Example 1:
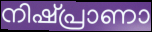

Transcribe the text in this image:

നിഷ്പ്രാണാ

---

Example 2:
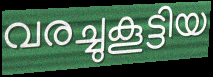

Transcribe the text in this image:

വരച്ചുകൂട്ടിയ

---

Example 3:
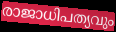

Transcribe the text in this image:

രാജാധിപത്യവും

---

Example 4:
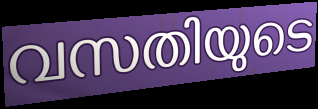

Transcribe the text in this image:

വസതിയുടെ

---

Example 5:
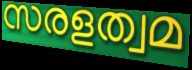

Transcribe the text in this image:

സരളത്വമ